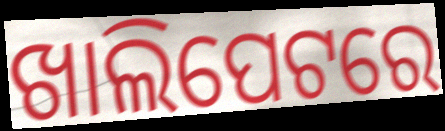
ଖାଲିପେଟରେ